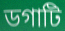
ডগাটি